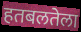
हतबलतेला